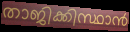
താജിക്കിസ്ഥാൻ